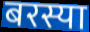
बरस्या